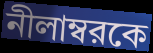
নীলাম্বরকে